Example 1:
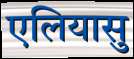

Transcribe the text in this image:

एलियासु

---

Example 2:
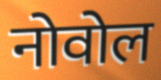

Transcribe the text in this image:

नोवोल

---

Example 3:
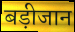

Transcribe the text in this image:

बड़ीजान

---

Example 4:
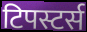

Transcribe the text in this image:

टिपस्टर्स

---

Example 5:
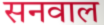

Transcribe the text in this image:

सनवाल